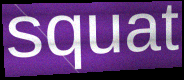
squat